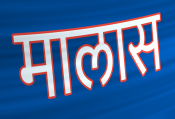
मालास